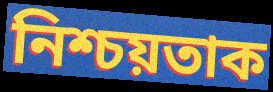
নিশ্চয়তাক